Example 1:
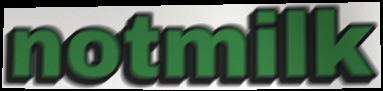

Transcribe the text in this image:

notmilk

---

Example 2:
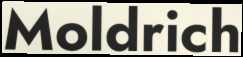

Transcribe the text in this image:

Moldrich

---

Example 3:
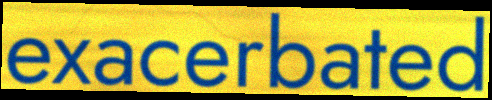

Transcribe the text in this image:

exacerbated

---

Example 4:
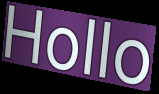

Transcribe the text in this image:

Hollo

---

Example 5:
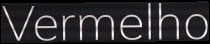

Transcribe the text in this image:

Vermelho